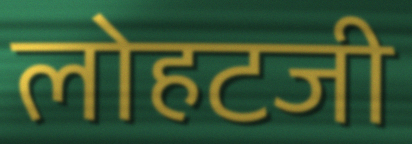
लोहटजी